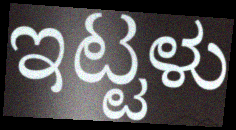
ಇಟ್ಟಳು